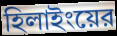
হিলাইংয়ের